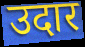
उदार